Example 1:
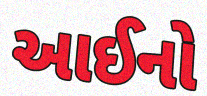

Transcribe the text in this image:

આઈનો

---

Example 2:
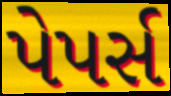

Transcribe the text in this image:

પેપર્સ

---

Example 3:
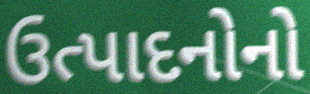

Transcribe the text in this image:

ઉત્પાદનોનો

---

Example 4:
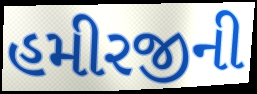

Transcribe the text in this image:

હમીરજીની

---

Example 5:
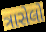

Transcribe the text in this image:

ત્રાસેલો